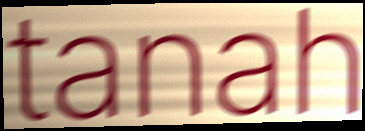
tanah